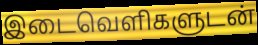
இடைவெளிகளுடன்